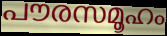
പൗരസമൂഹം